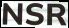
NSR